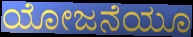
ಯೋಜನೆಯೂ